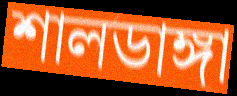
শালডাঙ্গা